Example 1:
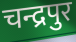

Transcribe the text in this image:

चन्द्रपुर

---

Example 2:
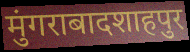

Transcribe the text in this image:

मुंगराबादशाहपुर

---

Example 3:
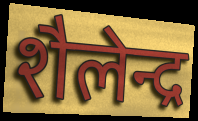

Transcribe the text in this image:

शैलेन्द्र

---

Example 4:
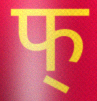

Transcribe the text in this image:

फ्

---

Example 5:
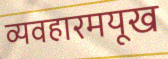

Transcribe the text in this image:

व्यवहारमयूख